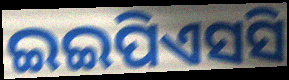
ଇଇପିଏସସି